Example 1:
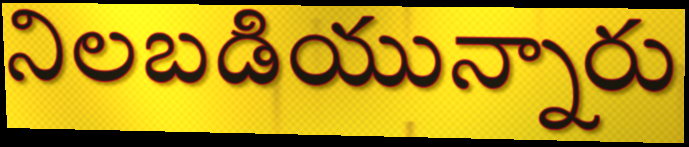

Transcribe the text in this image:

నిలబడియున్నారు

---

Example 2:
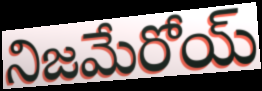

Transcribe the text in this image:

నిజమేరోయ్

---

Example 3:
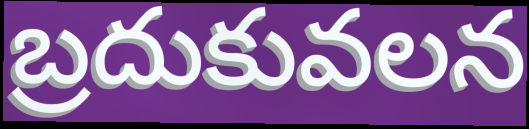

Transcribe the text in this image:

బ్రదుకువలన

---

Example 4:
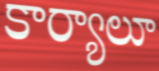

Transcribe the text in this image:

కార్యాలూ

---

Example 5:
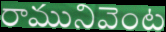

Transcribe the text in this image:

రామునివెంట